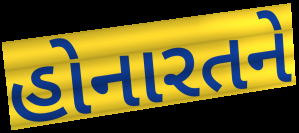
હોનારતને